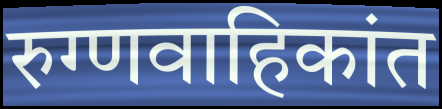
रुग्णवाहिकांत